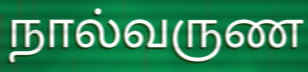
நால்வருண